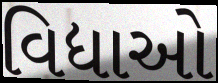
વિદ્યાઓ